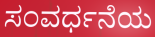
ಸಂವರ್ಧನೆಯ